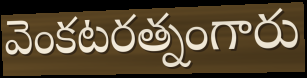
వెంకటరత్నంగారు